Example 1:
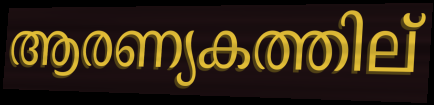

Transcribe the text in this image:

ആരണ്യകത്തില്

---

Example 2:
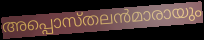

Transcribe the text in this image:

അപ്പൊസ്തലൻമാരായും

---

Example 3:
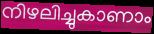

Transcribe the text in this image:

നിഴലിച്ചുകാണാം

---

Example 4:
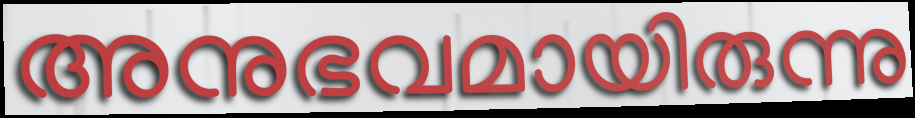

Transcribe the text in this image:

അനുഭവമായിരുന്നു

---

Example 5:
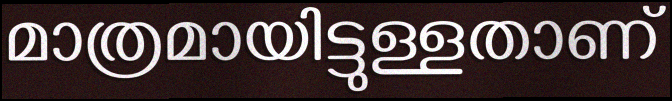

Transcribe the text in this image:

മാത്രമായിട്ടുള്ളതാണ്